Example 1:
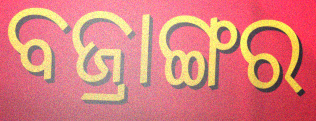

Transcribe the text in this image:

ବଜ୍ରାଙ୍ଗର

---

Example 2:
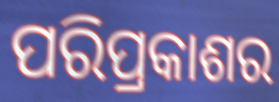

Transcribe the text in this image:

ପରିପ୍ରକାଶର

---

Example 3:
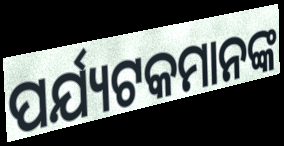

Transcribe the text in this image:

ପର୍ଯ୍ୟଟକମାନଙ୍କ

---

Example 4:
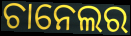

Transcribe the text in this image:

ଚାନେଲର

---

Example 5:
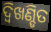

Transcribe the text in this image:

ଦ୍ଵିଖଣ୍ଡିତ